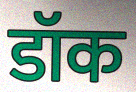
डॉक